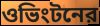
ওভিংটনের